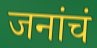
जनांचं